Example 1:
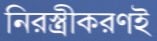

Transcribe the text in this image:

নিরস্ত্রীকরণই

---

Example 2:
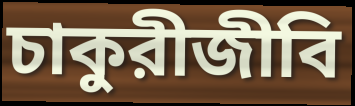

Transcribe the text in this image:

চাকুরীজীবি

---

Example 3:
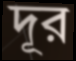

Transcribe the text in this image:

দূর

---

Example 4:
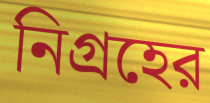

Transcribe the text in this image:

নিগ্রহের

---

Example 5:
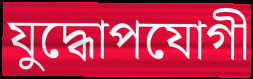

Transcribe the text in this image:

যুদ্ধোপযোগী